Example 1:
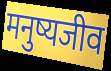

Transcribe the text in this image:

मनुष्यजीव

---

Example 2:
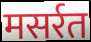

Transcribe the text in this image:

मसर्रत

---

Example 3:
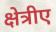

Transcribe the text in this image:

क्षेत्रीए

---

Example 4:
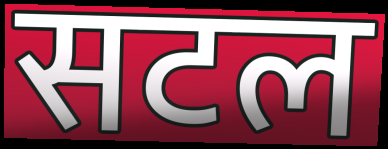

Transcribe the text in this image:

सटल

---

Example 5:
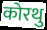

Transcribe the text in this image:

कोरथु